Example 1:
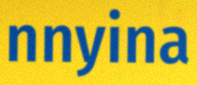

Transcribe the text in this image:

nnyina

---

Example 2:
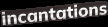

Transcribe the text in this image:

incantations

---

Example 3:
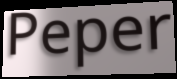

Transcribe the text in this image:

Peper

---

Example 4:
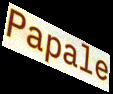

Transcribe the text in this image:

Papale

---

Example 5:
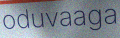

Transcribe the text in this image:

oduvaaga